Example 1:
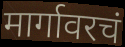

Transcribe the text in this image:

मार्गावरचं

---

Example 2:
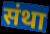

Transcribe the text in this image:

संथा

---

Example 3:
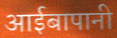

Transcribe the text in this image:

आईबापानी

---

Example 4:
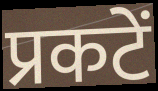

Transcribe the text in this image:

प्रकटें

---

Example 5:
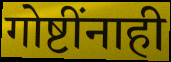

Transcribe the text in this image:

गोष्टींनाही